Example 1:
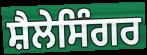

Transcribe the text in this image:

ਸ਼ੈਲੇਸਿੰਗਰ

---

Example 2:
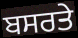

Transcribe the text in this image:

ਬਸਰਤੇ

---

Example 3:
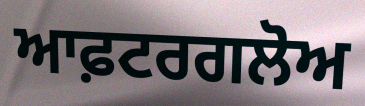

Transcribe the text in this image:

ਆਫ਼ਟਰਗਲੋਅ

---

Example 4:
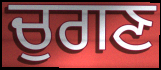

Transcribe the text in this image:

ਚੁਗਣ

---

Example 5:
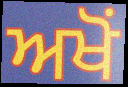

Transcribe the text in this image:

ਅਖੋਂ